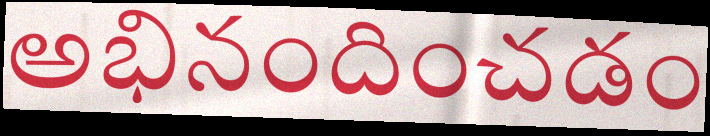
అభినందించడం